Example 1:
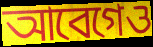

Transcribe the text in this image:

আবেগেও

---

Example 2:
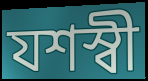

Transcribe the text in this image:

যশস্বী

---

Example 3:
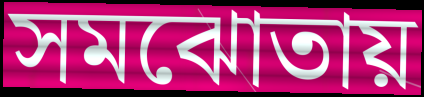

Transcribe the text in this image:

সমঝোতায়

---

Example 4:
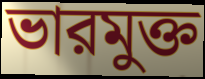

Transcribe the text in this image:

ভারমুক্ত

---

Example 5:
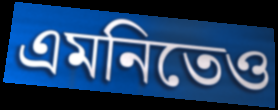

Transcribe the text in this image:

এমনিতেও